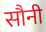
सौनी